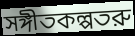
সঙ্গীতকল্পতরু